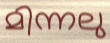
മിന്നലു